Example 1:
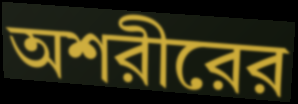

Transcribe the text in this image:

অশরীরের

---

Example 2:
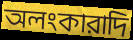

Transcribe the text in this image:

অলংকারাদি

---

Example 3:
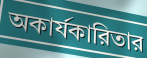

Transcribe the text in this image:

অকার্যকারিতার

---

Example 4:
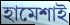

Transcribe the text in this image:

হামেশাই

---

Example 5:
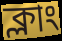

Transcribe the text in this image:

ক্লাং